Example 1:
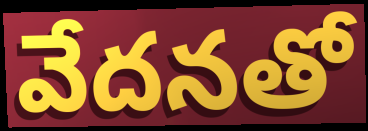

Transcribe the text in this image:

వేదనతో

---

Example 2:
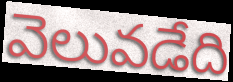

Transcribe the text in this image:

వెలువడేది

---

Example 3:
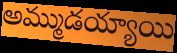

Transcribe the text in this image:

అమ్ముడయ్యాయి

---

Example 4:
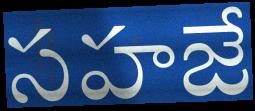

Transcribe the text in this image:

సహజే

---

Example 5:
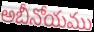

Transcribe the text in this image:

అబీనోయము